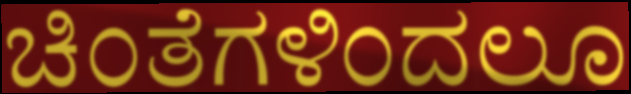
ಚಿಂತೆಗಳಿಂದಲೂ